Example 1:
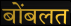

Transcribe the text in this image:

बोंबलत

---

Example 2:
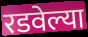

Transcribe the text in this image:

रडवेल्या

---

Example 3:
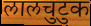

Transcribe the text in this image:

लालचुटुक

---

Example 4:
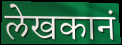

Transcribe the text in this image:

लेखकानं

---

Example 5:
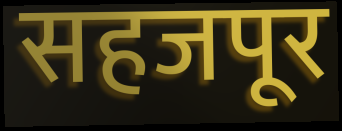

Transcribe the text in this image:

सहजपूर